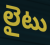
లైటు